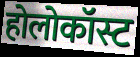
होलोकॉस्ट